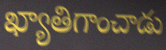
ఖ్యాతిగాంచాడు